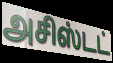
அசிஸ்டட்